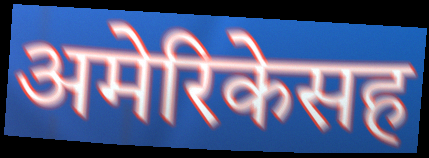
अमेरिकेसह